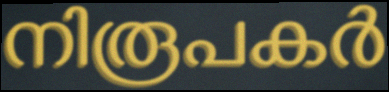
നിരൂപകർ